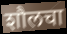
शौलचा